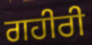
ਗਹੀਰੀ